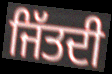
ਜਿੱਤਦੀ